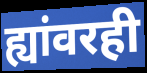
ह्यांवरही